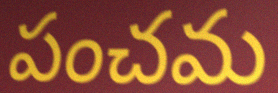
పంచమ